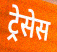
ट्रेसेस